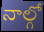
నాల్గో